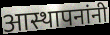
आस्थापनांनी